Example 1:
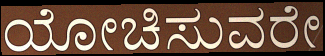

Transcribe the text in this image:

ಯೋಚಿಸುವರೇ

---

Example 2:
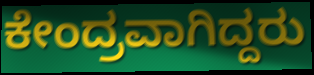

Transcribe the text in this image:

ಕೇಂದ್ರವಾಗಿದ್ದರು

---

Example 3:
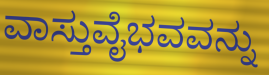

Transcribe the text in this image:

ವಾಸ್ತುವೈಭವವನ್ನು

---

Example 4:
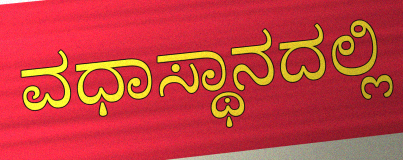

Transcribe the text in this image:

ವಧಾಸ್ಥಾನದಲ್ಲಿ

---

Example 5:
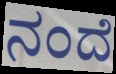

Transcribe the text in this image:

ನಂದೆ